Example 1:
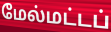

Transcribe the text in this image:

மேல்மட்டப்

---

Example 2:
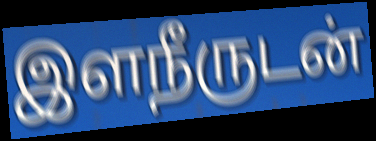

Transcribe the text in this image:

இளநீருடன்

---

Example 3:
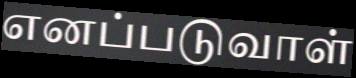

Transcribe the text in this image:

எனப்படுவாள்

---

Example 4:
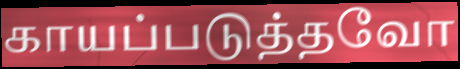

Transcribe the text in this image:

காயப்படுத்தவோ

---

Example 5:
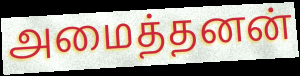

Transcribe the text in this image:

அமைத்தனன்